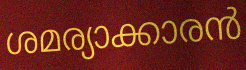
ശമര്യാക്കാരൻ